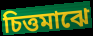
চিত্তমাঝে